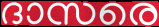
ദാസരെ